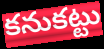
కనుకట్టు